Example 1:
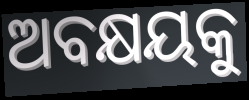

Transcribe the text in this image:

ଅବକ୍ଷୟକୁ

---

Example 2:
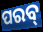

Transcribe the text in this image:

ପରବ୍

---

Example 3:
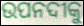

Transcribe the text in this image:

ଉପନଦୀକୁ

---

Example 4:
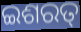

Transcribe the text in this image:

ଇଶରତ୍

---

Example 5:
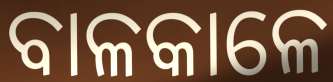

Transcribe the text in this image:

ବାଳକାଳେ